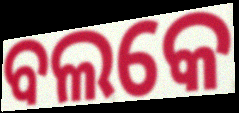
ବଲକେ